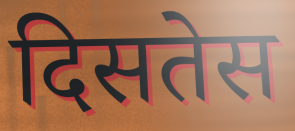
दिसतेस